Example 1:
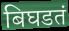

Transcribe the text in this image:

बिघडतं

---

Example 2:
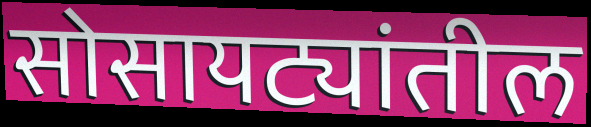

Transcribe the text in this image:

सोसायट्यांतील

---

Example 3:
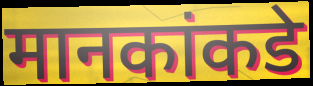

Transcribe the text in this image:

मानकांकडे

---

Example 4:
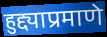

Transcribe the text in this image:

हुद्द्याप्रमाणे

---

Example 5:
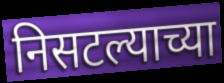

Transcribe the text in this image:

निसटल्याच्या